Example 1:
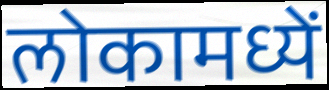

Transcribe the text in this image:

लोकामध्यें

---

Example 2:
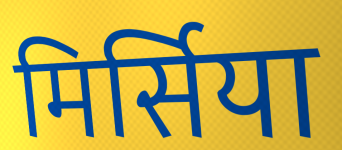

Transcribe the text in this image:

मिर्सिया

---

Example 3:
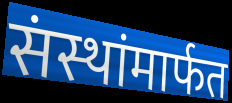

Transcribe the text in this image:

संस्थांमार्फत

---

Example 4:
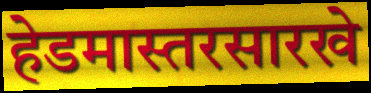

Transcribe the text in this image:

हेडमास्तरसारखे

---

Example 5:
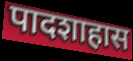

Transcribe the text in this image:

पादशाहास